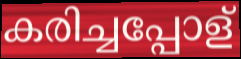
കരിച്ചപ്പോള്